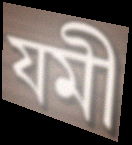
যমী